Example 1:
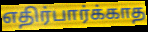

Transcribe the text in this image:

எதிர்பார்க்காத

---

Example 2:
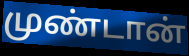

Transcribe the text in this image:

முண்டான்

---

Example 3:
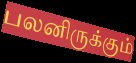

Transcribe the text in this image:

பலனிருக்கும்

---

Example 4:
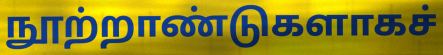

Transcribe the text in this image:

நூற்றாண்டுகளாகச்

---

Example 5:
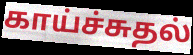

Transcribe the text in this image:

காய்ச்சுதல்